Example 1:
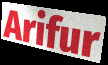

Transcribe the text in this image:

Arifur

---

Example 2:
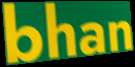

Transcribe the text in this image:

bhan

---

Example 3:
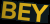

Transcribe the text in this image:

BEY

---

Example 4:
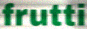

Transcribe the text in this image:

frutti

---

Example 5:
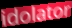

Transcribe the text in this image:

idolator